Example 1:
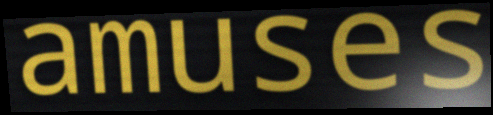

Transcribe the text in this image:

amuses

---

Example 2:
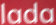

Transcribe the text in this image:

lada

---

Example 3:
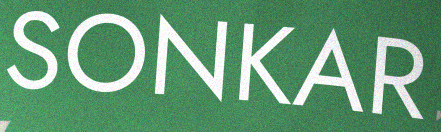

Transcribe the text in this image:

SONKAR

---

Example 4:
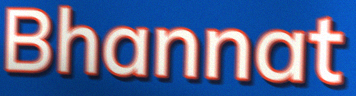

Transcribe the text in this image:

Bhannat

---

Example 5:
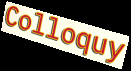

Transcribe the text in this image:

Colloquy